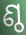
ଣ୍ଠ